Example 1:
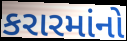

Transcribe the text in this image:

કરારમાંનો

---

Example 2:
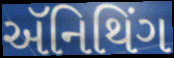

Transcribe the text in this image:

ઍનિથિંગ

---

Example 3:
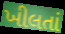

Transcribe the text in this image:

ખીલતાં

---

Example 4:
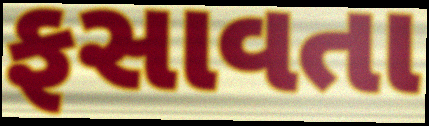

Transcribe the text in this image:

ફસાવતા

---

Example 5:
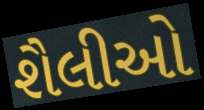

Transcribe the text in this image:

શૈલીઓ